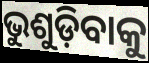
ଭୁଶୁଡ଼ିବାକୁ